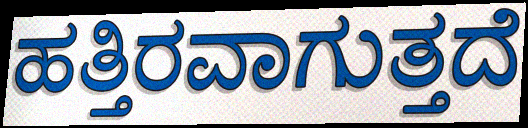
ಹತ್ತಿರವಾಗುತ್ತದೆ